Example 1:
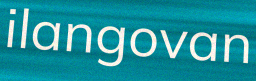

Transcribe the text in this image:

ilangovan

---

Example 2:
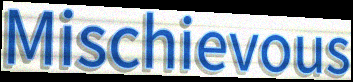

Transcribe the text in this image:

Mischievous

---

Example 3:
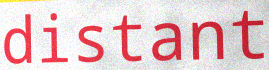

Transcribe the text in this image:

distant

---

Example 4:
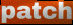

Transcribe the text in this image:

patch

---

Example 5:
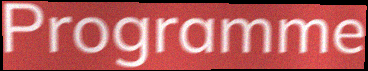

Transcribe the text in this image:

Programme